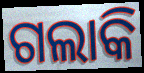
ଗଲାକି